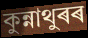
কুন্নাথুৰৰ